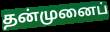
தன்முனைப்